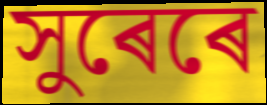
সুৰেৰে